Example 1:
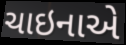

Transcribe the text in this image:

ચાઇનાએ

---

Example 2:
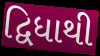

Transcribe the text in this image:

દ્વિધાથી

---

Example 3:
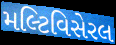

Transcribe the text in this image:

મલ્ટિવિસેરલ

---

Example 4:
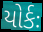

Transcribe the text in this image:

યોર્કઃ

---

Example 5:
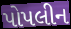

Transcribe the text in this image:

પોપલીન